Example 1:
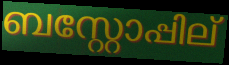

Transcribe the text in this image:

ബസ്റ്റോപ്പില്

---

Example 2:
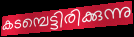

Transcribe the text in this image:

കടമ്പെട്ടിരിക്കുന്നു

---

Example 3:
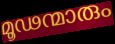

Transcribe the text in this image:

മൂഢന്മാരും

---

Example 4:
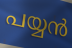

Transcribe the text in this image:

പയ്യൻ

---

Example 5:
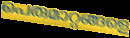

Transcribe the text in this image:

പെരുമാറ്റങ്ങളെ